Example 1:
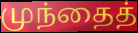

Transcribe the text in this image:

முந்தைத்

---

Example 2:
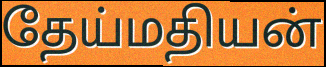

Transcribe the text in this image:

தேய்மதியன்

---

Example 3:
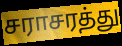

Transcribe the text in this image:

சராசரத்து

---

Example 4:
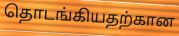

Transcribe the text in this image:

தொடங்கியதற்கான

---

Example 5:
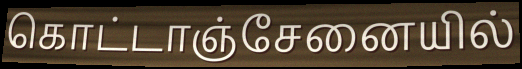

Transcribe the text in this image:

கொட்டாஞ்சேனையில்